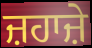
ਜ਼ਹਾਜ਼ੇ